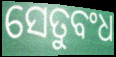
ସେତୁବଂଧ